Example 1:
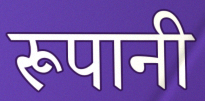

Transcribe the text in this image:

रूपानी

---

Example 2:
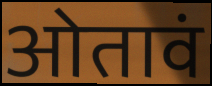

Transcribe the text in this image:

ओतावं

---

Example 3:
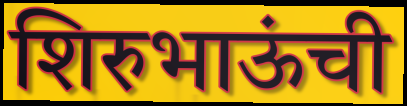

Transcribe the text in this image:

शिरुभाऊंची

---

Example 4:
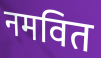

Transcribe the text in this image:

नमवित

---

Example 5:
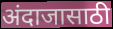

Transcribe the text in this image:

अंदाजासाठी